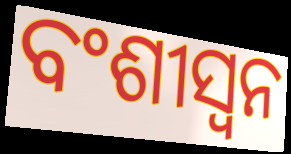
ବଂଶୀସ୍ୱନ